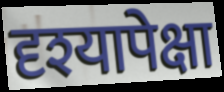
दृश्यापेक्षा